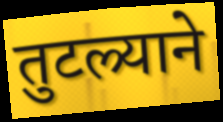
तुटल्याने